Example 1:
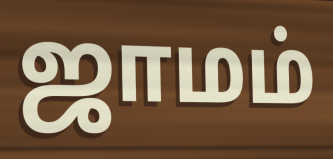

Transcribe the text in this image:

ஜாமம்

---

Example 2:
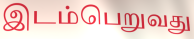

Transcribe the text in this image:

இடம்பெறுவது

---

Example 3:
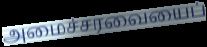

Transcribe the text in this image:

அமைச்சரவையைப்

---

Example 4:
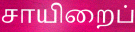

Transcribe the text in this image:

சாயிறைப்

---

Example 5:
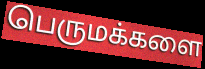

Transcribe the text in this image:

பெருமக்களை